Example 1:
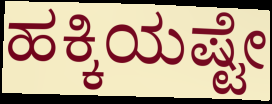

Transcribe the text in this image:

ಹಕ್ಕಿಯಷ್ಟೇ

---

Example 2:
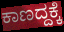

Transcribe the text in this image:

ಕಾಣದ್ದಕ್ಕೆ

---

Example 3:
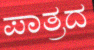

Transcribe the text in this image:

ಪಾತ್ರದ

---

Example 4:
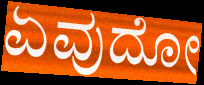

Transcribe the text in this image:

ಏವುದೋ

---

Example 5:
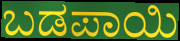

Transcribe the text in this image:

ಬಡಪಾಯಿ